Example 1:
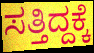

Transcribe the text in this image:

ಸತ್ತಿದ್ದಕ್ಕೆ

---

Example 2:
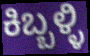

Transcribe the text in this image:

ಕಿಬ್ಬಳ್ಳಿ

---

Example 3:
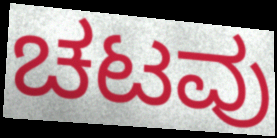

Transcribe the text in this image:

ಚಟವು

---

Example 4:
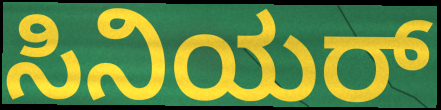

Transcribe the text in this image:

ಸಿನಿಯರ್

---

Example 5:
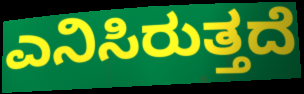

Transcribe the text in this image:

ಎನಿಸಿರುತ್ತದೆ